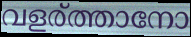
വളര്ത്താനോ